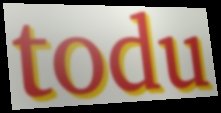
todu